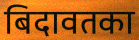
बिदावतका